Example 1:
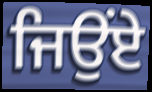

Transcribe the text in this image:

ਜਿਉਂਏ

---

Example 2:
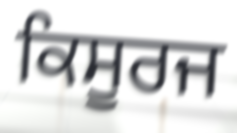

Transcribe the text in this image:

ਕਿਸੂਰਜ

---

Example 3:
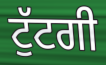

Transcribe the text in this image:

ਟੁੱਟਗੀ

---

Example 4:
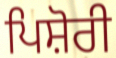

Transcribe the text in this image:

ਪਿਸ਼ੋਰੀ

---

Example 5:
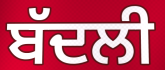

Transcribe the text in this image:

ਬੱਦਲੀ